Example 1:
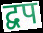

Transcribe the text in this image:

द्वप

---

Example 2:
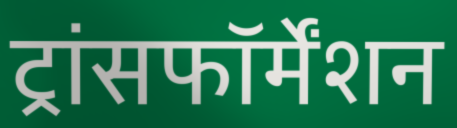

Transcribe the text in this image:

ट्रांसफॉर्मेंशन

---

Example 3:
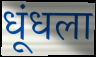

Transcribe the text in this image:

धूंधला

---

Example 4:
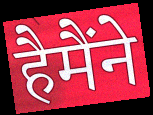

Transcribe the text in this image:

हैमैंने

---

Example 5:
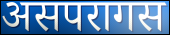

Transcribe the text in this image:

असपरागस